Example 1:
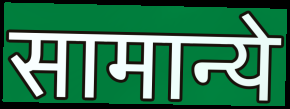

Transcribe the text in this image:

सामान्ये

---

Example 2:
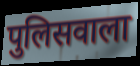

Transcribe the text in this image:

पुलिसवाला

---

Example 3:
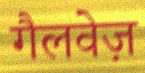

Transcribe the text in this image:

गैलवेज़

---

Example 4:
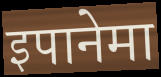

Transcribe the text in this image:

इपानेमा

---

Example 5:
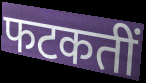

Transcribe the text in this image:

फटकतीं